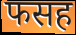
फसह